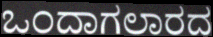
ಒಂದಾಗಲಾರದ